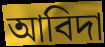
আবিদা